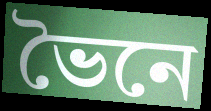
ভৈনে